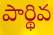
పార్థివ